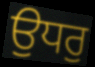
ਉਧਰੁ